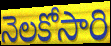
నెలకోసారి